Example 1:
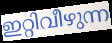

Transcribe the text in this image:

ഇറ്റിവീഴുന്ന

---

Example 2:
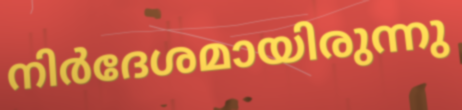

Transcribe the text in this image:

നിർദേശമായിരുന്നു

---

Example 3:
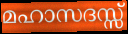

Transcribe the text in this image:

മഹാസദസ്സ്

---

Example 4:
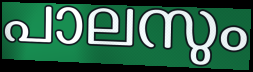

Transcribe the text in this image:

പാലസും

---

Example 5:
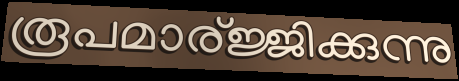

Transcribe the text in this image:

രൂപമാര്ജ്ജിക്കുന്നു